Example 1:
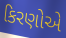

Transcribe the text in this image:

કિરણોએ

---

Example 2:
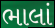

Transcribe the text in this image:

ભાલાં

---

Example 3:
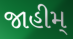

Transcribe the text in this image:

જાહીમ્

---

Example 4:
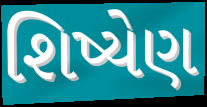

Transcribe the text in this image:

શિષ્યેણ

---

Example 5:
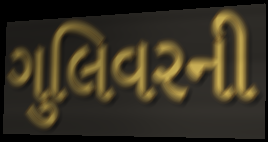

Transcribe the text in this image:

ગુલિવરની